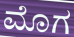
ಮೊಗ